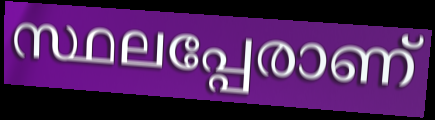
സ്ഥലപ്പേരാണ്